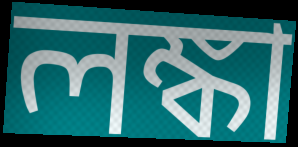
লঙ্কা